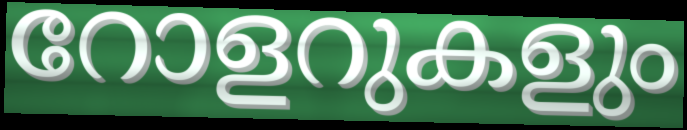
റോളറുകളും